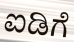
ಐಡಿಗೆ